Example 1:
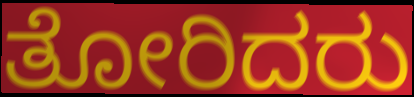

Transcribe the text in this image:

ತೋರಿದರು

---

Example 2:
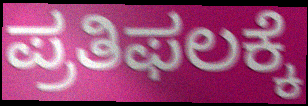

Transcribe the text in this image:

ಪ್ರತಿಫಲಕ್ಕೆ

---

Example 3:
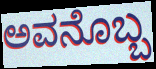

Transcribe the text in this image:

ಅವನೊಬ್ಬ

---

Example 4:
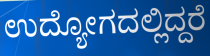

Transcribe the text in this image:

ಉದ್ಯೋಗದಲ್ಲಿದ್ದರೆ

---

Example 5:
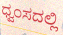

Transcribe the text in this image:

ಧ್ವಂಸದಲ್ಲಿ